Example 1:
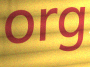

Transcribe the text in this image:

org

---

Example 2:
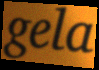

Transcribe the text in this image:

gela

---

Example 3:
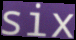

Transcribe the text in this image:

six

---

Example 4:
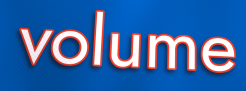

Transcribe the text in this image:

volume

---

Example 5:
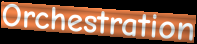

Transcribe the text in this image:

Orchestration